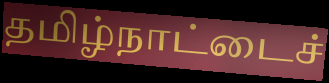
தமிழ்நாட்டைச்